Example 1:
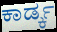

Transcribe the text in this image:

ಕಾರ್ಡ್ಕ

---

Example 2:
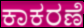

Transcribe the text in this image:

ಕಾಕರಣೆ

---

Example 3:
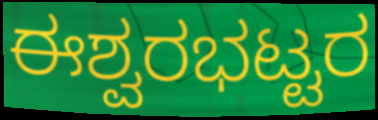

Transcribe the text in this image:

ಈಶ್ವರಭಟ್ಟರ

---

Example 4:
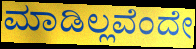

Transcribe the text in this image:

ಮಾಡಿಲ್ಲವೆಂದೇ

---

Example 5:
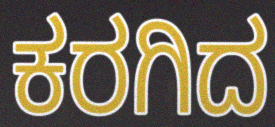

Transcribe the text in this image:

ಕರಗಿದ